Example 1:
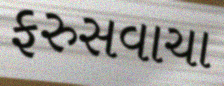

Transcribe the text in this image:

ફરુસવાચા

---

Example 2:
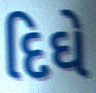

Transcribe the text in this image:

દિઘે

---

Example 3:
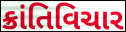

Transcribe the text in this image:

ક્રાંતિવિચાર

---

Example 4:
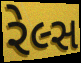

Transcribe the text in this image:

રેલ્સ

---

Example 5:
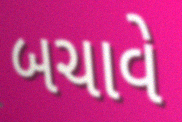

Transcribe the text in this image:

બચાવે